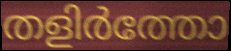
തളിർത്തോ